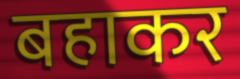
बहाकर